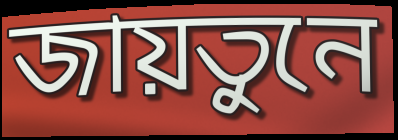
জায়তুনে